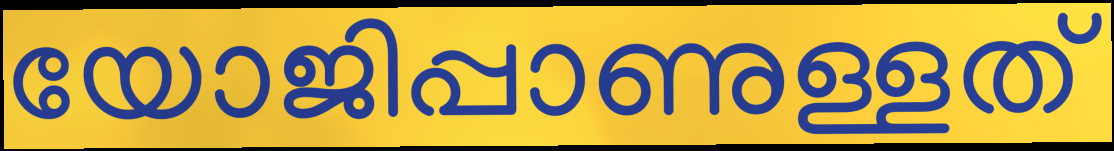
യോജിപ്പാണുള്ളത്